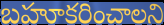
బహూకరించాలని